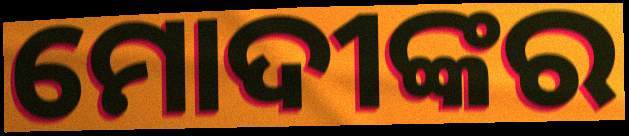
ମୋଦୀଙ୍କର